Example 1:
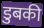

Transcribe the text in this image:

डुबकी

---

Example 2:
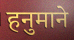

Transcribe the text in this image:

हनुमाने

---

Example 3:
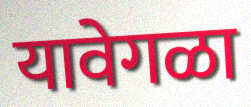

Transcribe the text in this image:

यावेगळा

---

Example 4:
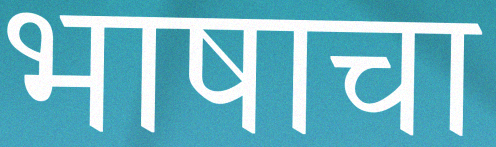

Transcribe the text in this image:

भाषाचा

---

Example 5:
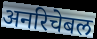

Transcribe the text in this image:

अनरिचेबल